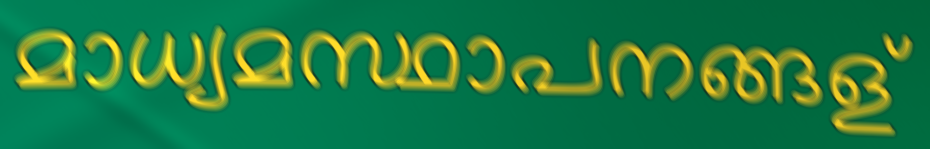
മാധ്യമസ്ഥാപനങ്ങള്